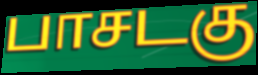
பாசடகு